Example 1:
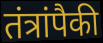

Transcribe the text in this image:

तंत्रांपैकी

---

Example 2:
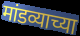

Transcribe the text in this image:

मांडव्याच्या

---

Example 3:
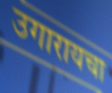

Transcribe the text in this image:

उगारायचा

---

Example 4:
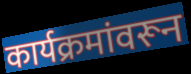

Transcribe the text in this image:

कार्यक्रमांवरून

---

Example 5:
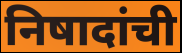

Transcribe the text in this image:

निषादांची